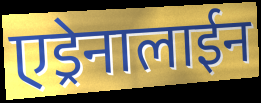
एड्रेनालाईन